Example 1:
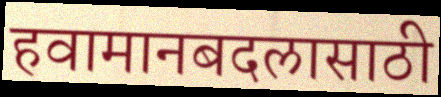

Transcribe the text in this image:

हवामानबदलासाठी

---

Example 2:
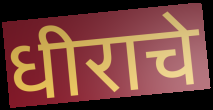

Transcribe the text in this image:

धीराचे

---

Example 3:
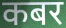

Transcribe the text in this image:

कबर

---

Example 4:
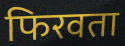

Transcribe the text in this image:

फिरवता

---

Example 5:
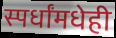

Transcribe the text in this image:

स्पर्धांमधेही